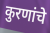
कुरणांचे